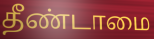
தீண்டாமை